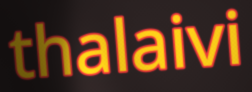
thalaivi